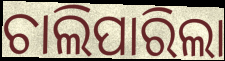
ଚାଲିପାରିଲା